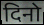
दिनो